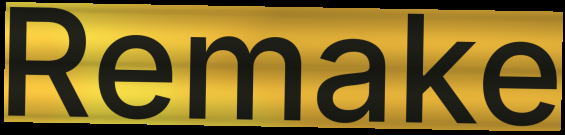
Remake